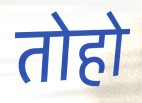
तोहो